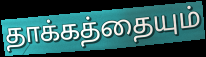
தாக்கத்தையும்